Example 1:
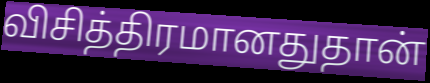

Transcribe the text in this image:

விசித்திரமானதுதான்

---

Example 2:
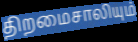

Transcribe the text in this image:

திறமைசாலியும்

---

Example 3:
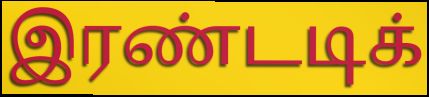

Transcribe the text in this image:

இரண்டடிக்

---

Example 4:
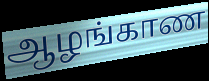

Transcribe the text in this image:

ஆழங்காண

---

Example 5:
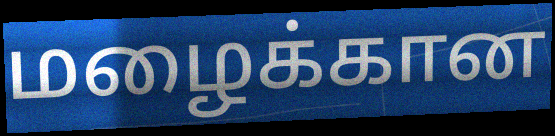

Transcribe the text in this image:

மழைக்கான